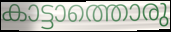
കാട്ടാത്തൊരു